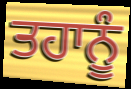
ਤਹਾਨੂੰ